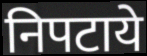
निपटाये